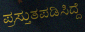
ಪ್ರಸ್ತುತಪಡಿಸಿದ್ದೆ